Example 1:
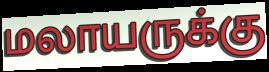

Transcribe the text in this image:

மலாயருக்கு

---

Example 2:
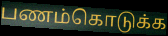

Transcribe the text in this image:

பணம்கொடுக்க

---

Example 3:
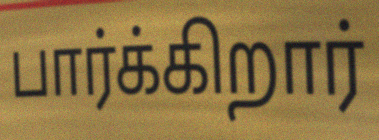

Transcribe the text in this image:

பார்க்கிறார்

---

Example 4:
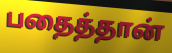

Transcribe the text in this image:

பதைத்தான்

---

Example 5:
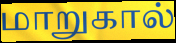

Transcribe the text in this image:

மாறுகால்